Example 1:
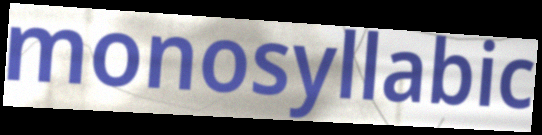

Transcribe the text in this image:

monosyllabic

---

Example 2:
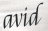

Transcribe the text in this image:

avid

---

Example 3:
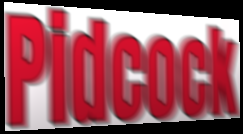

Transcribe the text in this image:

Pidcock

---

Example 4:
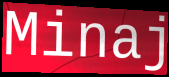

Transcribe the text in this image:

Minaj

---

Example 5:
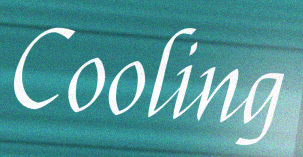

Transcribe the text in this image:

Cooling